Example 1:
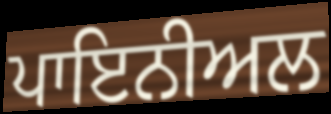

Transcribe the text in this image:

ਪਾਇਨੀਅਲ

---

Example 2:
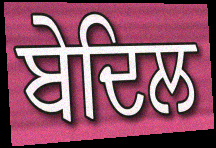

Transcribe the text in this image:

ਬੇਦਿਲ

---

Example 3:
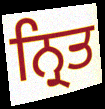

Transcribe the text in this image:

ਨ੍ਰਿਤ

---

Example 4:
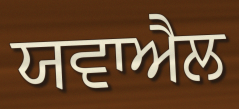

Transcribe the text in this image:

ਯਵਾਐਲ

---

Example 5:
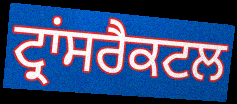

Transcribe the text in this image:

ਟ੍ਰਾਂਸਰੈਕਟਲ